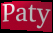
Paty